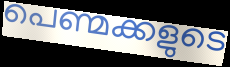
പെണ്മക്കളുടെ